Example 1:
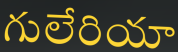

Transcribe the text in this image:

గులేరియా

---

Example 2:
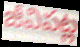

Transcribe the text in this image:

జీవిపట్ల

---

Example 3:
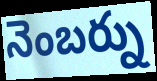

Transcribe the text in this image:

నెంబర్ను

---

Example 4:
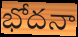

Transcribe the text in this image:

భోదనా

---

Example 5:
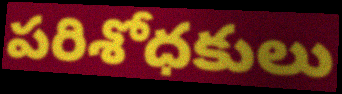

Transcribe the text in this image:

పరిశోధకులు